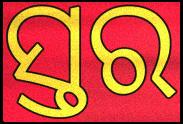
ସ୍ତର